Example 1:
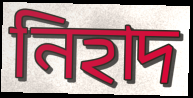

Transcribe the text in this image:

নিহাদ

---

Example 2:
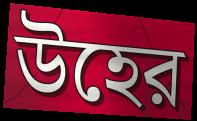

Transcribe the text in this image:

উহের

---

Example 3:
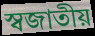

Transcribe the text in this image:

স্বজাতীয়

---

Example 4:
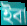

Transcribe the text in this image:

ইবা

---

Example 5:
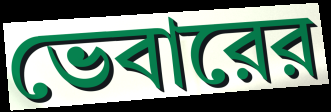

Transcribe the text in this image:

ভেবারের